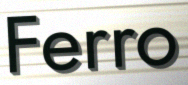
Ferro